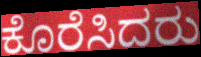
ಕೊರೆಸಿದರು